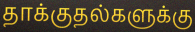
தாக்குதல்களுக்கு